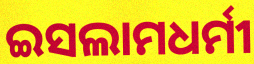
ଇସଲାମଧର୍ମୀ